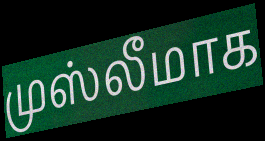
முஸ்லீமாக